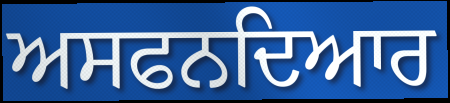
ਅਸਫਨਦਿਆਰ